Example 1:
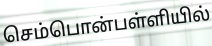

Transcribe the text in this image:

செம்பொன்பள்ளியில்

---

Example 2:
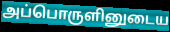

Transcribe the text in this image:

அப்பொருளினுடைய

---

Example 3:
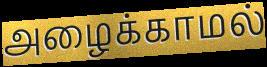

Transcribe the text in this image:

அழைக்காமல்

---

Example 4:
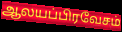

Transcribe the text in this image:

ஆலயப்பிரவேசம்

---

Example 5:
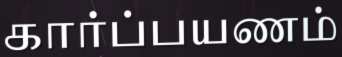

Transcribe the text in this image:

கார்ப்பயணம்